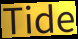
Tide